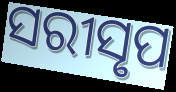
ସରୀସୃପ